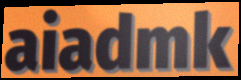
aiadmk